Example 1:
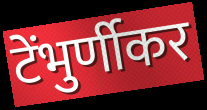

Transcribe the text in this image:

टेंभुर्णीकर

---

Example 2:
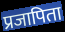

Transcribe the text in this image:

प्रजापिता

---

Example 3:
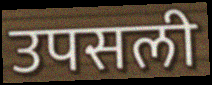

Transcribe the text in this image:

उपसली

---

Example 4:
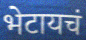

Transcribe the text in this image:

भेटायचं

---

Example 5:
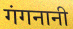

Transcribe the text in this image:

गंगनानी